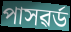
পাসৱৰ্ড